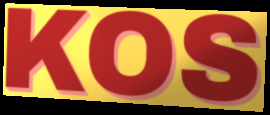
KOS